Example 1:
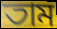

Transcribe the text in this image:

তাম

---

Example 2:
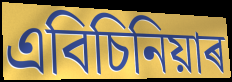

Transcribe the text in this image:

এবিচিনিয়াৰ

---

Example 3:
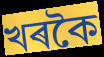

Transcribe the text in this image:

খৰকৈ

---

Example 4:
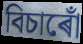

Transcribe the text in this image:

বিচাৰোঁ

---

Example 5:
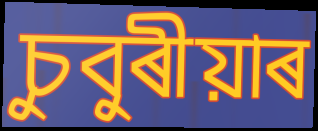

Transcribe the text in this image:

চুবুৰীয়াৰ